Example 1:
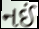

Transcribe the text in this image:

નઈં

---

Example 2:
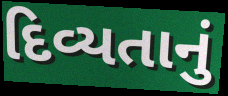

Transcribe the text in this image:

દિવ્યતાનું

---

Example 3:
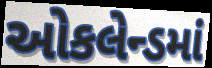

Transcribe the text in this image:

ઓકલેન્ડમાં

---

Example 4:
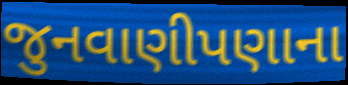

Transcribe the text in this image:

જુનવાણીપણાના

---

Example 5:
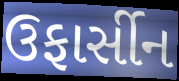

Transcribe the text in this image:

ઉફાર્સીન